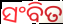
ସଂବିତ